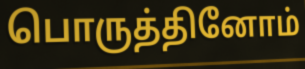
பொருத்தினோம்